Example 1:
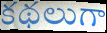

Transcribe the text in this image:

కథలుగా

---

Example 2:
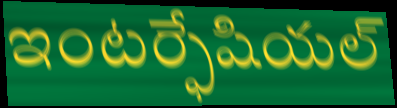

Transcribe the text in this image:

ఇంటర్ఫేషియల్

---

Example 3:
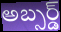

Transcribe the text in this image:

అబ్సర్డ్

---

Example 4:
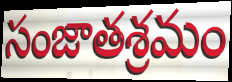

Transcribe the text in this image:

సంజాతశ్రమం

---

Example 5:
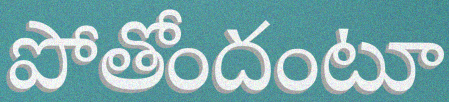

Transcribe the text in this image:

పోతోందంటూ